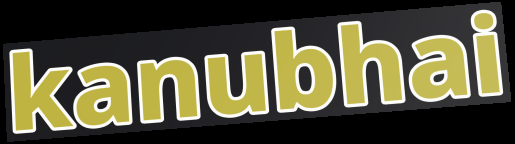
kanubhai